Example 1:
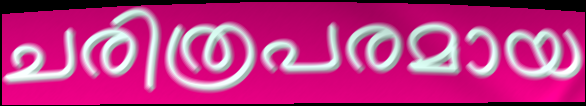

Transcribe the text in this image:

ചരിത്രപരമായ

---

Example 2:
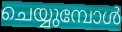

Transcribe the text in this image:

ചെയ്യുമ്പോൾ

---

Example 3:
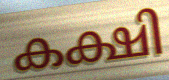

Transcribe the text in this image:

കക്ഷി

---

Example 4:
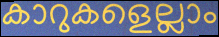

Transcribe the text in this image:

കാറുകളെല്ലാം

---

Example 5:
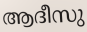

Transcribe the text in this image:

ആദീസു